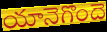
యానెగొందె